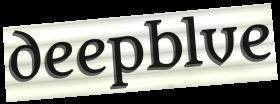
deepblue